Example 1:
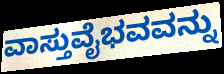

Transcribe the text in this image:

ವಾಸ್ತುವೈಭವವನ್ನು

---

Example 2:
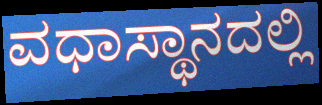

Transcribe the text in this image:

ವಧಾಸ್ಥಾನದಲ್ಲಿ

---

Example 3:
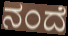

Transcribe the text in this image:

ನಂದೆ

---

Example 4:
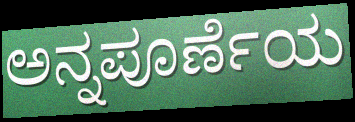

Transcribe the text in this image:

ಅನ್ನಪೂರ್ಣೆಯ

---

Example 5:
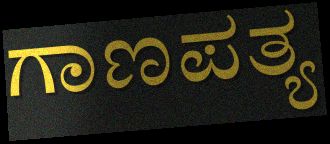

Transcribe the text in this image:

ಗಾಣಪತ್ಯ